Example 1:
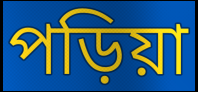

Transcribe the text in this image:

পড়িয়া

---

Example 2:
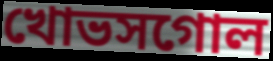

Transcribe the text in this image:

খোভসগোল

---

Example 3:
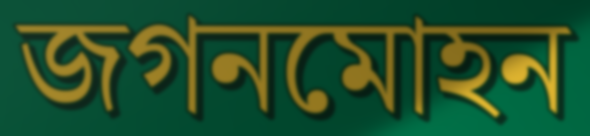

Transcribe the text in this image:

জগনমোহন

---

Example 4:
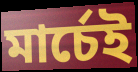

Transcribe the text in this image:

মার্চেই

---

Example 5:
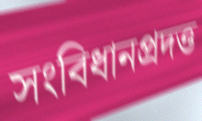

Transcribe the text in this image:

সংবিধানপ্রদত্ত